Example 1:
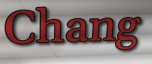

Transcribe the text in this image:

Chang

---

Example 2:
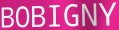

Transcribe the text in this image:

BOBIGNY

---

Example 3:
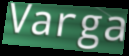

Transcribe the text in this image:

Varga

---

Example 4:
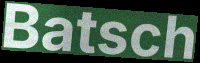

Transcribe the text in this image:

Batsch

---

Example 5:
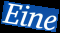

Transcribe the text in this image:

Eine